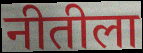
नीतीला